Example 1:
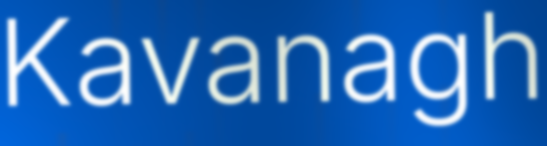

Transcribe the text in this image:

Kavanagh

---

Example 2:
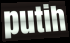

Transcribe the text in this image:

putih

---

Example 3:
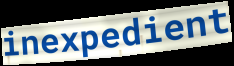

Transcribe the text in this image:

inexpedient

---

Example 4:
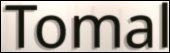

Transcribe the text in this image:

Tomal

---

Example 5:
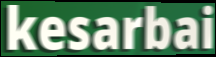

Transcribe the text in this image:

kesarbai